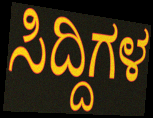
ಸಿದ್ದಿಗಳ